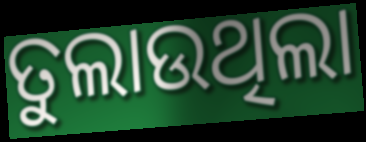
ତୁଲାଉଥିଲା